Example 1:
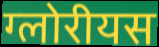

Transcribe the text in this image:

ग्लोरीयस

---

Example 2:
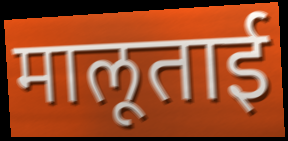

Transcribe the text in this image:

मालूताई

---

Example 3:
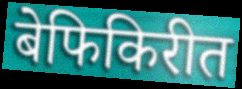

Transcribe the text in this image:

बेफिकिरीत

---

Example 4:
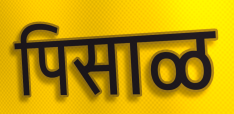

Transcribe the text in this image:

पिसाळ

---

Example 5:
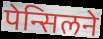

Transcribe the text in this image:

पेन्सिलने